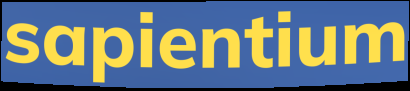
sapientium